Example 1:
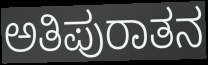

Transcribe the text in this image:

ಅತಿಪುರಾತನ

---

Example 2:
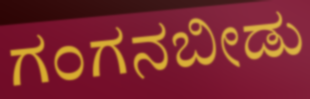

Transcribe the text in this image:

ಗಂಗನಬೀಡು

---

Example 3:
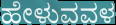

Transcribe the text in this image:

ಹೇಳುವವಳ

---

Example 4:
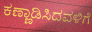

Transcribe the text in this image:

ಕಣ್ಣಾಡಿಸಿದವಳಿಗೆ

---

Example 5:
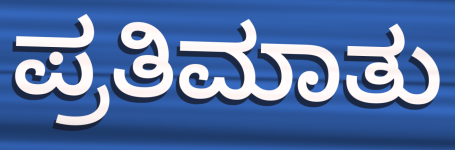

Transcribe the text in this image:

ಪ್ರತಿಮಾತು